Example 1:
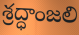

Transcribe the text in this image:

శ్రద్ధాంజలి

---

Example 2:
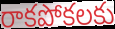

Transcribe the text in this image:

రాకపోకలకు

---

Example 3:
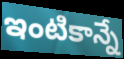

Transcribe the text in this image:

ఇంటికాన్నే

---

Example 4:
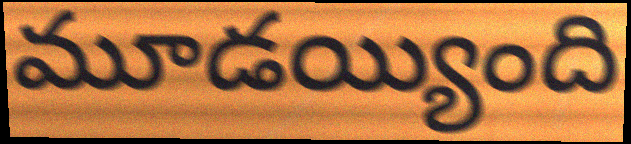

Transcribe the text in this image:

మూడయ్యింది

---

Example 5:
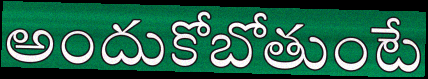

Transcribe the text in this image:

అందుకోబోతుంటే